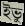
ইভু